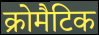
क्रोमैटिक